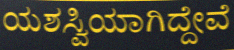
ಯಶಸ್ವಿಯಾಗಿದ್ದೇವೆ